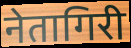
नेतागिरी